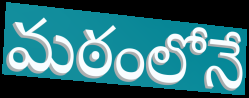
మఠంలోనే